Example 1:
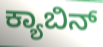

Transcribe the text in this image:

ಕ್ಯಾಬಿನ್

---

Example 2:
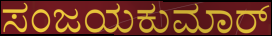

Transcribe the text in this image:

ಸಂಜಯಕುಮಾರ್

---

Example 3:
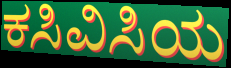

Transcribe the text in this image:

ಕಸಿವಿಸಿಯ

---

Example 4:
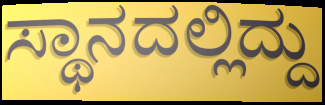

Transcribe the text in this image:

ಸ್ಥಾನದಲ್ಲಿದ್ದು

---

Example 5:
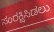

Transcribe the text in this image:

ಸಂರಕ್ಷಿಸಿಡಲು